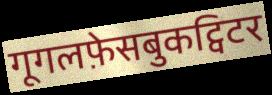
गूगलफ़ेसबुकट्विटर